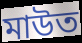
মাউত